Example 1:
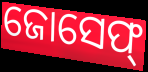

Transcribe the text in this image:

ଜୋସେଫ୍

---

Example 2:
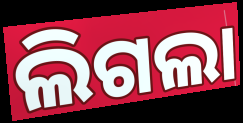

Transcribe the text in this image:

ଲିଗଲା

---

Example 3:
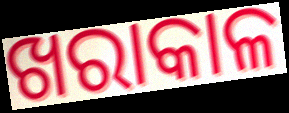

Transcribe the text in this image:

ଖରାକାଳ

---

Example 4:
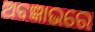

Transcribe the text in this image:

ଅବଜ୍ଞାଭରେ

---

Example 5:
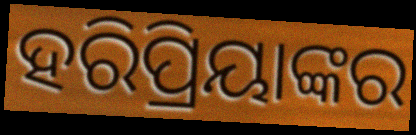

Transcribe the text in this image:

ହରିପ୍ରିୟାଙ୍କର